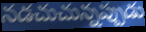
నడచుచున్నప్పుడు